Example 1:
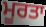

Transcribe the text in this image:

ਮੂਰਤਾ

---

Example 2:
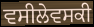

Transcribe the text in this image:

ਵਸੀਲੇਵਸਕੀ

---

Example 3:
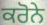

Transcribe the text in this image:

ਕਰੋਨੇ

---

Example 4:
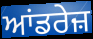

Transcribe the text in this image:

ਆਂਡਰੇਜ਼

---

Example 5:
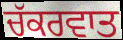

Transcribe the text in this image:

ਚੱਕਰਵਾਤ